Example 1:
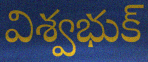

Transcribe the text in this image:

విశ్వభుక్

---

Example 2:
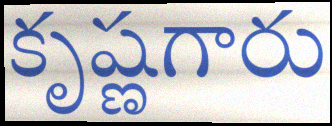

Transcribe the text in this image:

కృష్ణగారు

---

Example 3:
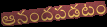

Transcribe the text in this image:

ఆనందపడటం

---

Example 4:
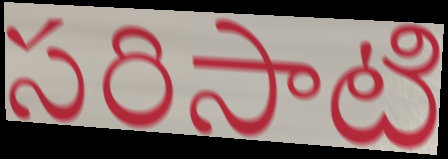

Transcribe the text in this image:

సరిసాటి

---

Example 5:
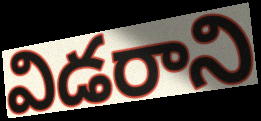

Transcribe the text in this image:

విడరాని